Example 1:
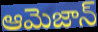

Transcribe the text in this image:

ఆమెజాన్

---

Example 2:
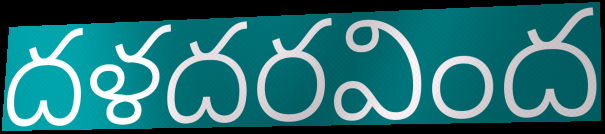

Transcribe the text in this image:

దళదరవింద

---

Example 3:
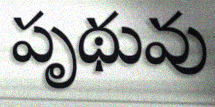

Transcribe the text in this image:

పృథువు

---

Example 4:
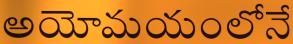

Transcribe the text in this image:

అయోమయంలోనే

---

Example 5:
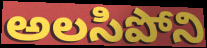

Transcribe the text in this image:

అలసిపోని